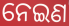
ନେଇଣ